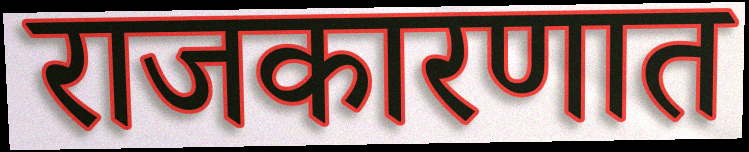
राजकारणात